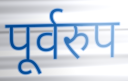
पूर्वरुप